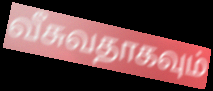
வீசுவதாகவும்